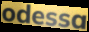
odessa